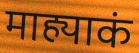
माह्याकं